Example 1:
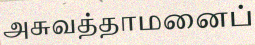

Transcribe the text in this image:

அசுவத்தாமனைப்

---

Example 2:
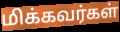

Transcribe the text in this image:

மிக்கவர்கள்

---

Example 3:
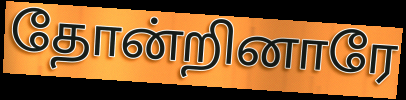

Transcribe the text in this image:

தோன்றினாரே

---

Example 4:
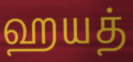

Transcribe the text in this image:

ஹயத்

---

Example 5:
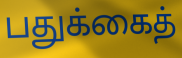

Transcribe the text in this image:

பதுக்கைத்